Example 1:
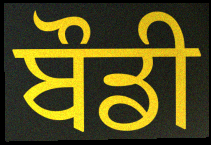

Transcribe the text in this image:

ਬੌਡੀ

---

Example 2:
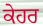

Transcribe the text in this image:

ਕੇਹਰ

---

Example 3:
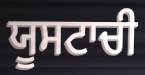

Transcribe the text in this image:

ਯੂਸਟਾਚੀ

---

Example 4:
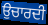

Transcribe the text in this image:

ਉਚਾਰਦੀ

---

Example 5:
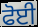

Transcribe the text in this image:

ਫੋਈ